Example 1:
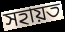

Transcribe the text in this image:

সহায়ত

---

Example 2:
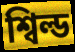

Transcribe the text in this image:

শ্বিল্ড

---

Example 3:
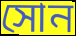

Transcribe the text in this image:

সোন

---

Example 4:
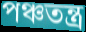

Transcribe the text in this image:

পঞ্চতন্ত্ৰ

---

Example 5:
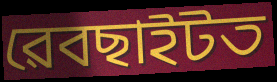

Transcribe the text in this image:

ৱেবছাইটত